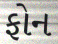
ફોન